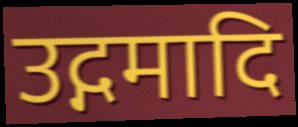
उद्गमादि